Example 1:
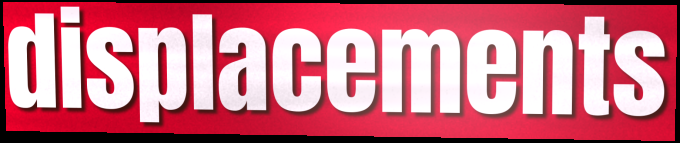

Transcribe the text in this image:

displacements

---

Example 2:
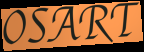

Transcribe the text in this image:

OSART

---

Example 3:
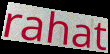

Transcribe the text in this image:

rahat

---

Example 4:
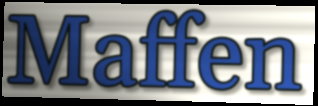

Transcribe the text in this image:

Maffen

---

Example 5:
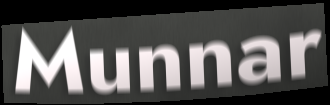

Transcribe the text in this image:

Munnar